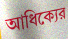
আধিক্যের